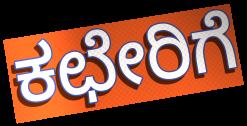
ಕಛೇರಿಗೆ